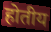
होतीय